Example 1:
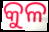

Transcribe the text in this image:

କୁଳ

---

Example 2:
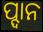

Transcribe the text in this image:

ପ୍ଦାନ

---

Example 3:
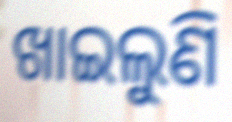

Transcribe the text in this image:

ଖାଇଲୁଣି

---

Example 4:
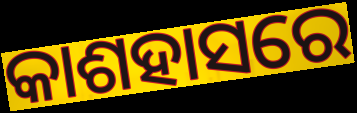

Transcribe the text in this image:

କାଶହାସରେ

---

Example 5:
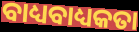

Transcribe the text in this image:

ବାଧ୍ୟବାଧ୍ୟକତା